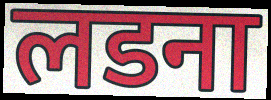
लडना